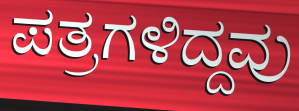
ಪತ್ರಗಳಿದ್ದವು